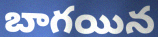
బాగయిన